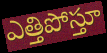
ఎత్తిపోస్తూ